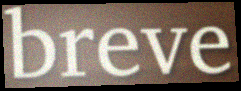
breve